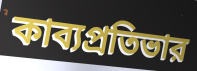
কাব্যপ্রতিভার